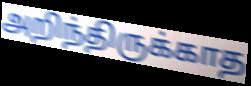
அறிந்திருக்காத